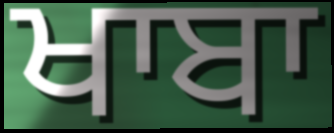
ਖਾਬਾ